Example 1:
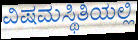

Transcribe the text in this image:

ವಿಷಮಸ್ಥಿತಿಯಲ್ಲಿ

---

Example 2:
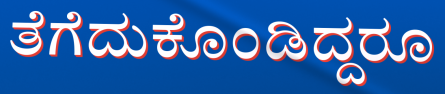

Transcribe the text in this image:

ತೆಗೆದುಕೊಂಡಿದ್ದರೂ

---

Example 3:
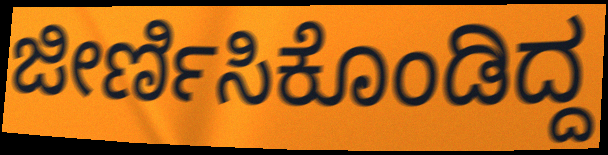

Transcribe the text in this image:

ಜೀರ್ಣಿಸಿಕೊಂಡಿದ್ದ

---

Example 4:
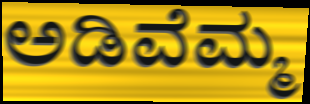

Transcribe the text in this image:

ಅಡಿವೆಮ್ಮ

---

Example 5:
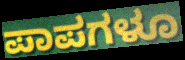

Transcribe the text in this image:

ಪಾಪಗಳೂ